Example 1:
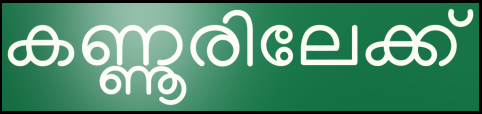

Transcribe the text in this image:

കണ്ണൂരിലേക്ക്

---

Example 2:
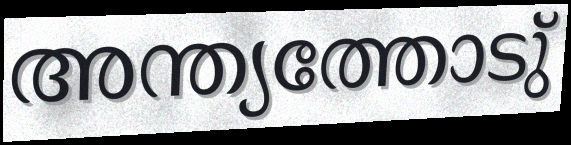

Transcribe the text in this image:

അന്ത്യത്തോടു്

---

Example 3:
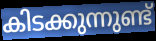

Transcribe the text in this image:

കിടക്കുന്നുണ്ട്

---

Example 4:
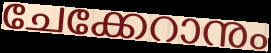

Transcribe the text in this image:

ചേക്കേറാനും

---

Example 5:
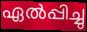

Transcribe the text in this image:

ഏൽപ്പിച്ചു